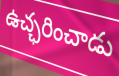
ఉచ్ఛరించాడు